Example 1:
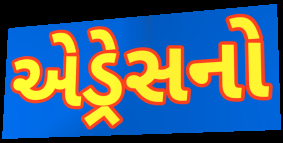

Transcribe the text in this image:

એડ્રેસનો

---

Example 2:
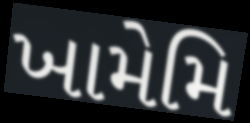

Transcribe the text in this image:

ખામેમિ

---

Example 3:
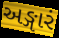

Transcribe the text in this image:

અઙ્ગારં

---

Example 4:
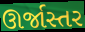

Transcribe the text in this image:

ઊર્જાસ્તર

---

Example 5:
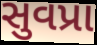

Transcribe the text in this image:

સુવપ્રા